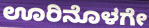
ಊರಿನೊಳಗೇ